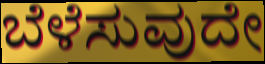
ಬೆಳೆಸುವುದೇ